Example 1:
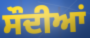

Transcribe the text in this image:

ਸੌਦੀਆਂ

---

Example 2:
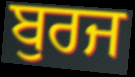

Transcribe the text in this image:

ਬੁਰਜ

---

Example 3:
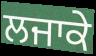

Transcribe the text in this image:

ਲਜਾਕੇ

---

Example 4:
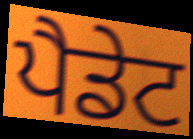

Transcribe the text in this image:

ਪੈਡੇਟ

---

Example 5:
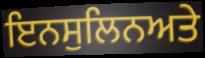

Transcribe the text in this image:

ਇਨਸੁਲਿਨਅਤੇ